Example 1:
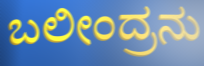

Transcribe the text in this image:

ಬಲೀಂದ್ರನು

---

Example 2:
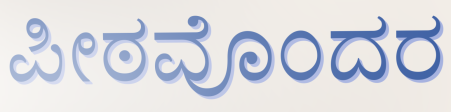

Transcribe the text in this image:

ಪೀಠವೊಂದರ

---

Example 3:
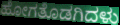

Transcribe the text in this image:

ಹೋಗತೊಡಗಿದಳು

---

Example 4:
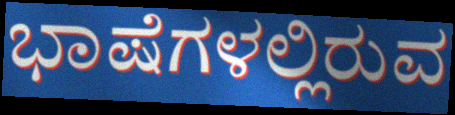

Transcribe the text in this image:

ಭಾಷೆಗಳಲ್ಲಿರುವ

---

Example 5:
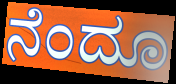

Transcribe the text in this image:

ನೆಂದೂ